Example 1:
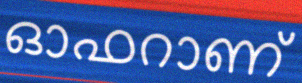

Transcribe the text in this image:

ഓഫറാണ്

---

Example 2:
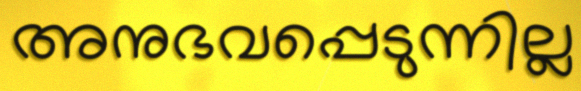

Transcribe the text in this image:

അനുഭവപ്പെടുന്നില്ല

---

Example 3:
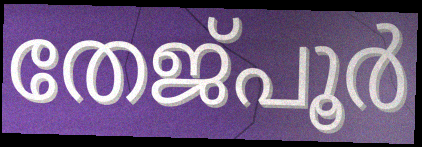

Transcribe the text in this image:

തേജ്പൂർ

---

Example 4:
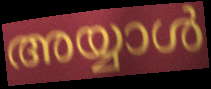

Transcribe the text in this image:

അയ്യാൾ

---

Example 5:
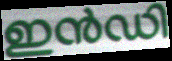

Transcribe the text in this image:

ഇൻഡി